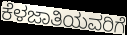
ಕೆಳಜಾತಿಯವರಿಗೆ